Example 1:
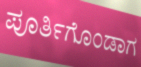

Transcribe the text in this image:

ಪೂರ್ತಿಗೊಂಡಾಗ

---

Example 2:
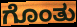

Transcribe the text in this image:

ಗೊಂತು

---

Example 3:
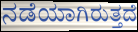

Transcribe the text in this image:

ನಡೆಯಾಗಿರುತ್ತದೆ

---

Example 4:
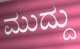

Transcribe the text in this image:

ಮುದ್ದು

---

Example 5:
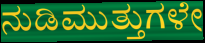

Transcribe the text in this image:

ನುಡಿಮುತ್ತುಗಳೇ